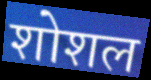
शोशल